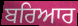
ਬਰਿਆਰ